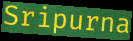
Sripurna